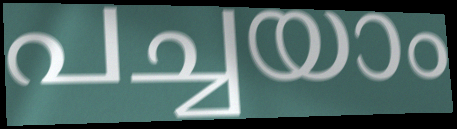
പച്ചയാം